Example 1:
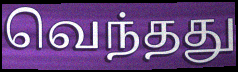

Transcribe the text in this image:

வெந்தது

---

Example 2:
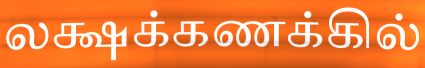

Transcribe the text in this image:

லக்ஷக்கணக்கில்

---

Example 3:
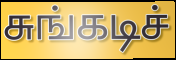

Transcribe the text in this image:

சுங்கடிச்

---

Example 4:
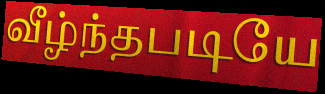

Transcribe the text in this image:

வீழ்ந்தபடியே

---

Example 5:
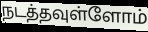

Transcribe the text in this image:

நடத்தவுள்ளோம்